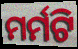
ମର୍ମଟି